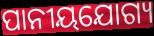
ପାନୀୟଯୋଗ୍ୟ